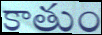
కాతుం